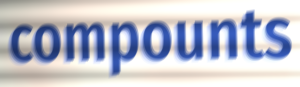
compounts